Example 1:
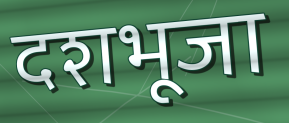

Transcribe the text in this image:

दशभूजा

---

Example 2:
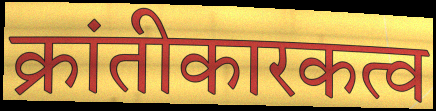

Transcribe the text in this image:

क्रांतीकारकत्व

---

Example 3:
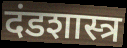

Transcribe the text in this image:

दंडशास्त्र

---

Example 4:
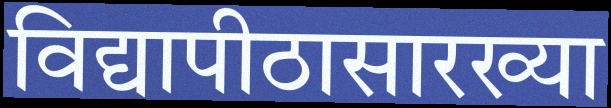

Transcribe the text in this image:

विद्यापीठासारख्या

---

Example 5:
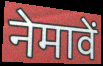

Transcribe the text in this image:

नेमावें